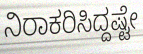
ನಿರಾಕರಿಸಿದ್ದಷ್ಟೇ